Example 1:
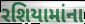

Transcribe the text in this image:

રશિયામાંના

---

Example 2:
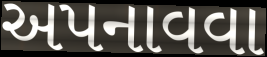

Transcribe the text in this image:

અપનાવવા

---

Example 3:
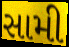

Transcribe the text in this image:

સામી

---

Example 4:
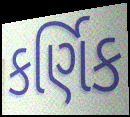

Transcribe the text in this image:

કર્ણિક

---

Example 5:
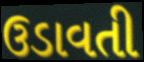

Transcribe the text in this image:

ઉડાવતી